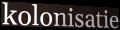
kolonisatie